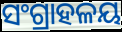
ସଂଗ୍ରାହଳୟ